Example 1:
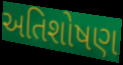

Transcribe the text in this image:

અતિશોષણ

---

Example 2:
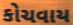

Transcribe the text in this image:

કોચવાય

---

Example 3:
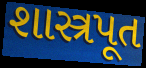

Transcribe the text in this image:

શાસ્ત્રપૂત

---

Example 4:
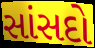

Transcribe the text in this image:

સાંસદો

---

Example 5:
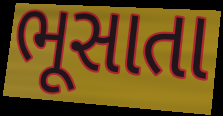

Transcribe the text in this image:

ભૂસાતા